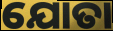
ଯୋତା